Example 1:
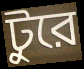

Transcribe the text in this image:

টুরে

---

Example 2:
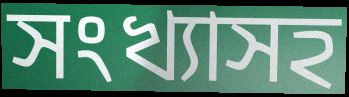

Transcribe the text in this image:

সংখ্যাসহ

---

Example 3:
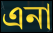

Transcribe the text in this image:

এনা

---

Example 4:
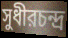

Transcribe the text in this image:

সুধীরচন্দ্র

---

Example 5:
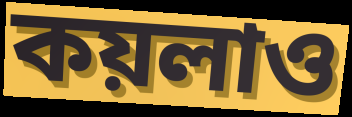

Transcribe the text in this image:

কয়লাও